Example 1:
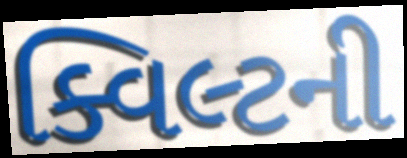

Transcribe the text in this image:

ક્વિલ્ટની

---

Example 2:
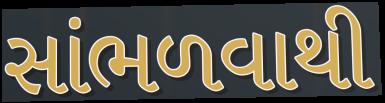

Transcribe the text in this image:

સાંભળવાથી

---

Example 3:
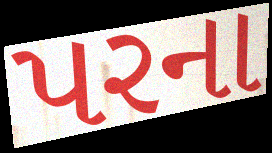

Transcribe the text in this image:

પરના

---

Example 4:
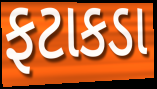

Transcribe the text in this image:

ફટાકડા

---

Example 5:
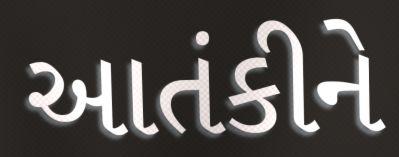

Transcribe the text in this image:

આતંકીને